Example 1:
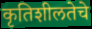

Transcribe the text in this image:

कृतिशीलतेचे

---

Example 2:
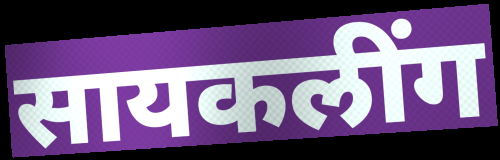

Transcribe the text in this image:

सायकलींग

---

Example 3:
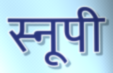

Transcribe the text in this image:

स्नूपी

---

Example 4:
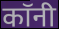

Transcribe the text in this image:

कॉनी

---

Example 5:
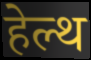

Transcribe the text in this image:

हेल्थ